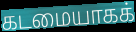
கடமையாகக்